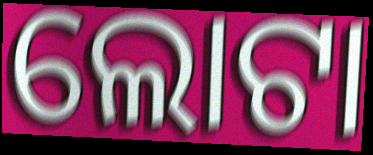
ଲୋଟା